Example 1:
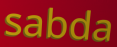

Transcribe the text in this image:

sabda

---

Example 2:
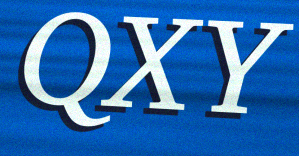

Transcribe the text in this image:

QXY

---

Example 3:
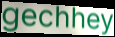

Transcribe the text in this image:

gechhey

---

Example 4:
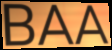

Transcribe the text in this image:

BAA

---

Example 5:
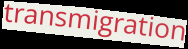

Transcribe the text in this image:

transmigration